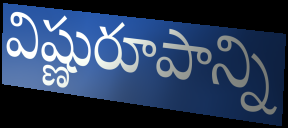
విష్ణురూపాన్ని